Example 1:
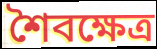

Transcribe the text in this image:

শৈবক্ষেত্র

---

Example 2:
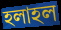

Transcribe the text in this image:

হলাহল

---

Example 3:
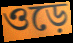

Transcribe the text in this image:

ওড়ে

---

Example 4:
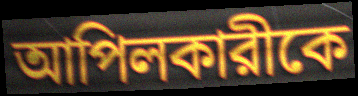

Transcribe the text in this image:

আপিলকারীকে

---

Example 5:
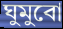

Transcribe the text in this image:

ঘুমুবো